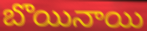
బొయినాయి